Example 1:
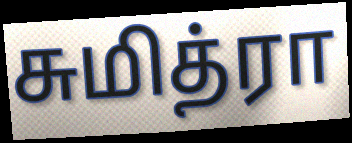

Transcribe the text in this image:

சுமித்ரா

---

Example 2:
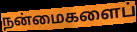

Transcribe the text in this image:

நன்மைகளைப்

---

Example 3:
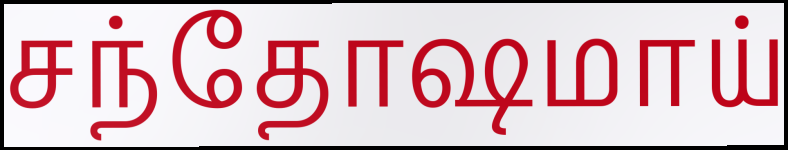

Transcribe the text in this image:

சந்தோஷமாய்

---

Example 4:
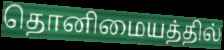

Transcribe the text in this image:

தொனிமையத்தில்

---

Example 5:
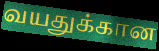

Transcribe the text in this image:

வயதுக்கான